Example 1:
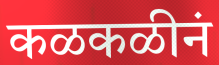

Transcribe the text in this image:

कळकळीनं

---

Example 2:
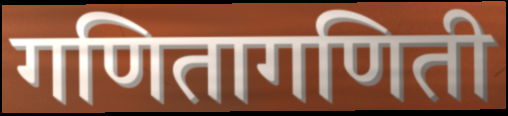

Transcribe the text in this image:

गणितागणिती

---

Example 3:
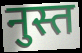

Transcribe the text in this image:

नुस्त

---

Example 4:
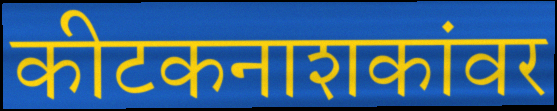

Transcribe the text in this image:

कीटकनाशकांवर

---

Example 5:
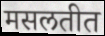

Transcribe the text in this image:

मसलतीत